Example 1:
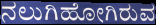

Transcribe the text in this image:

ನಲುಗಿಹೋಗಿರುವ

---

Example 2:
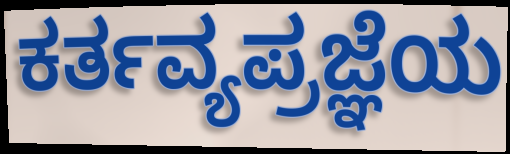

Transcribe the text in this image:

ಕರ್ತವ್ಯಪ್ರಜ್ಞೆಯ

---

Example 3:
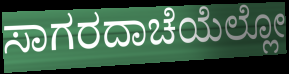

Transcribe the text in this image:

ಸಾಗರದಾಚೆಯೆಲ್ಲೋ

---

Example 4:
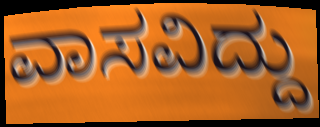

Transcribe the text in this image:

ವಾಸವಿದ್ದು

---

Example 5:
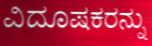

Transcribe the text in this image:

ವಿದೂಷಕರನ್ನು